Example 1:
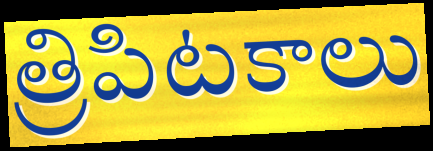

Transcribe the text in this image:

త్రిపిటకాలు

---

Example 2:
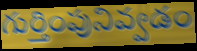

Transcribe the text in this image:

గుర్తింపునివ్వడం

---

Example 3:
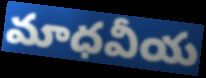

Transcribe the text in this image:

మాధవీయ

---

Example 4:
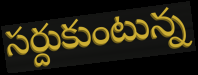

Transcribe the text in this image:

సర్దుకుంటున్న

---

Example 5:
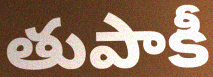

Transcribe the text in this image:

తుపాకీ